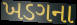
ખડગના